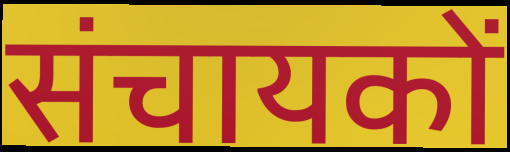
संचायकों